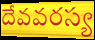
దేవవరస్య